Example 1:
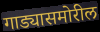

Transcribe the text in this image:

गाड्यासमोरील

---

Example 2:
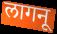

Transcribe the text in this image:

लागनू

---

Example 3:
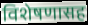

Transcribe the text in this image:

विशेषणासह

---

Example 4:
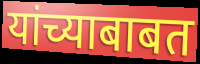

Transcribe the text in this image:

यांच्याबाबत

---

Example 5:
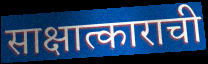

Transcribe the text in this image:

साक्षात्काराची